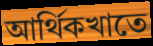
আর্থিকখাতে